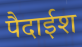
पैदाईश